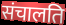
संचालति